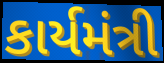
કાર્યમંત્રી